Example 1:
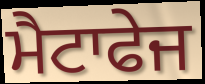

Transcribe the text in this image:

ਮੈਟਾਫੇਜ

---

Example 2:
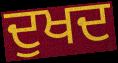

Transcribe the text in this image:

ਦੁਖਦ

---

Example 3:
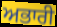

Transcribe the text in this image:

ਅਭਾਰੀ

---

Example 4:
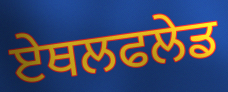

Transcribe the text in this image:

ਏਥਲਫਲੇਡ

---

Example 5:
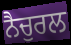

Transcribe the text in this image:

ਨੈਚੁਰਲ